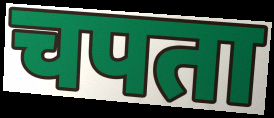
चपता